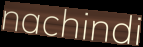
nachindi